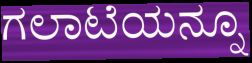
ಗಲಾಟೆಯನ್ನೂ